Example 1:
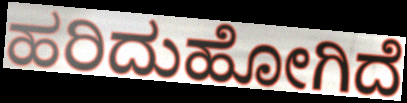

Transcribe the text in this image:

ಹರಿದುಹೋಗಿದೆ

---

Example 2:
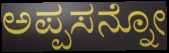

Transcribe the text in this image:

ಅಪ್ಪಸನ್ನೋ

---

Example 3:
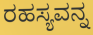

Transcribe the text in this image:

ರಹಸ್ಯವನ್ನ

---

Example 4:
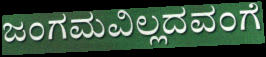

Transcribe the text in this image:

ಜಂಗಮವಿಲ್ಲದವಂಗೆ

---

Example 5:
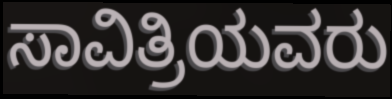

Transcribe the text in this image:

ಸಾವಿತ್ರಿಯವರು